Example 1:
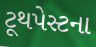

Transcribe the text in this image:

ટૂથપેસ્ટના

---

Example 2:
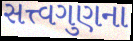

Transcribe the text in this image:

સત્ત્વગુણના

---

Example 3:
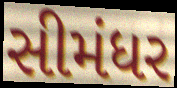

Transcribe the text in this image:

સીમંધર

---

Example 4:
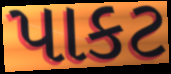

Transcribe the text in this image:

પાકટ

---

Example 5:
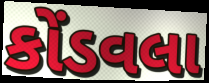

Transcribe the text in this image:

કોંડવલા